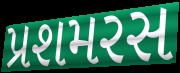
પ્રશમરસ